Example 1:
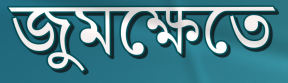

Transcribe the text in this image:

জুমক্ষেতে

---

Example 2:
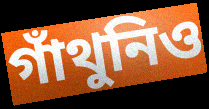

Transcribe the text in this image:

গাঁথুনিও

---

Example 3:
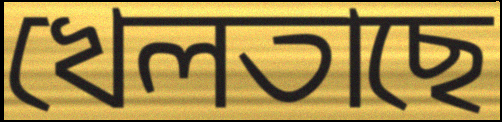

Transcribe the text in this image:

খেলতাছে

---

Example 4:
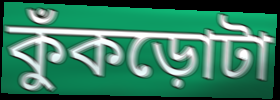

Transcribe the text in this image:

কুঁকড়োটা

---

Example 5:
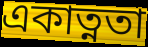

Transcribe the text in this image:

একাত্নতা